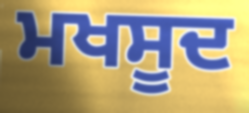
ਮਖਸੂਦ